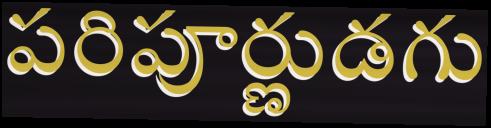
పరిపూర్ణుడగు